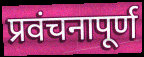
प्रवंचनापूर्ण